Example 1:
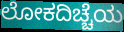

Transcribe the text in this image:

ಲೋಕದಿಚ್ಚೆಯ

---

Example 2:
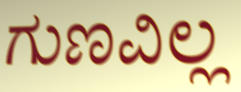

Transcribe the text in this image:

ಗುಣವಿಲ್ಲ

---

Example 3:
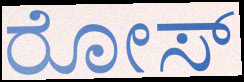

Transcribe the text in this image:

ರೋಸ್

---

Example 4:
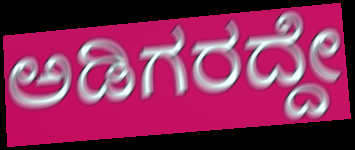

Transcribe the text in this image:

ಅಡಿಗರದ್ದೇ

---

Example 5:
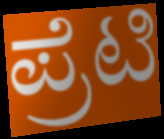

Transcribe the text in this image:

ಪ್ರೆಟಿ